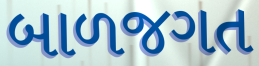
બાળજગત